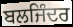
ਬਲਜਿੰਦਰ